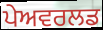
ਪੇਅਵਰਲਡ